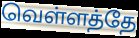
வெள்ளத்தே